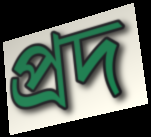
প্রদ